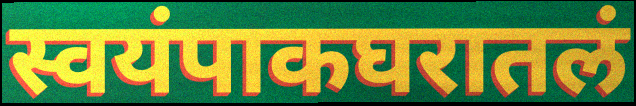
स्वयंपाकघरातलं